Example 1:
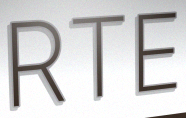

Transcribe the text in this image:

RTE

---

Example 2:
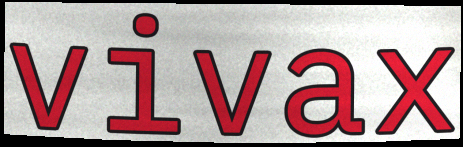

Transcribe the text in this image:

vivax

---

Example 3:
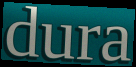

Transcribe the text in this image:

dura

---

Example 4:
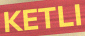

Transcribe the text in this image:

KETLI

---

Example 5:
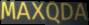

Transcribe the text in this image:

MAXQDA